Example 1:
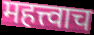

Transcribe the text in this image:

महत्त्वाच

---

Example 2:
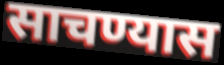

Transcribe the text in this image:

साचण्यास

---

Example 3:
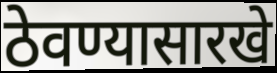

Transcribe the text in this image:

ठेवण्यासारखे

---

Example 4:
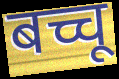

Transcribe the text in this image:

बच्चू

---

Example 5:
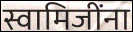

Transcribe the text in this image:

स्वामिजींना